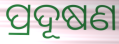
ପ୍ରଦୂଷଣ